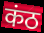
कंठ